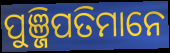
ପୁଞ୍ଜିପତିମାନେ